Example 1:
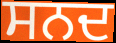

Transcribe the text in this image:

ਸਨਦ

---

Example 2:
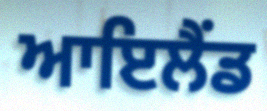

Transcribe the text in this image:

ਆਇਲੈੰਡ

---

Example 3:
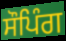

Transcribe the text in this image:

ਸੌਪਿੰਗ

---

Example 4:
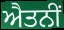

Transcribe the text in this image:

ਐਤਨੀਂ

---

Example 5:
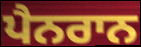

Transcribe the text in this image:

ਪੈਨਰਾਨ